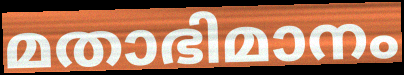
മതാഭിമാനം